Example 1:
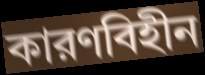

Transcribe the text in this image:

কারণবিহীন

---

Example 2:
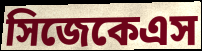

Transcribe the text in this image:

সিজেকেএস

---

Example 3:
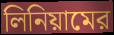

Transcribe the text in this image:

লিনিয়ামের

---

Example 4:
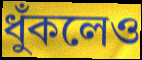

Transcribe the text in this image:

ধুঁকলেও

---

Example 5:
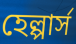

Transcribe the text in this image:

হেল্পার্স